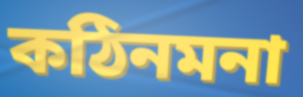
কঠিনমনা